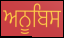
ਅਨੂਬਿਸ